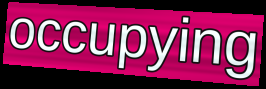
occupying